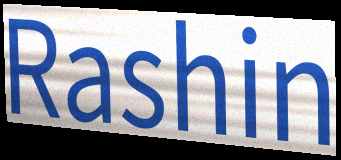
Rashin